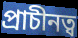
প্ৰাচীনত্ব